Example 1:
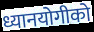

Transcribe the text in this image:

ध्यानयोगीको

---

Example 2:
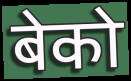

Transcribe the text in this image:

बेको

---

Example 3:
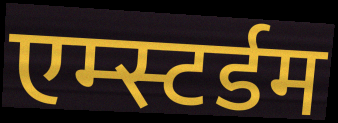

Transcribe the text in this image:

एम्स्टर्डम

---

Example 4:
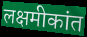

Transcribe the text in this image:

लक्षमीकांत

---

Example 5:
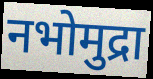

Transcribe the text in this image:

नभोमुद्रा